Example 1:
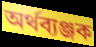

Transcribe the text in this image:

অৰ্থব্যঞ্জক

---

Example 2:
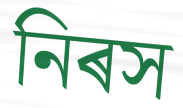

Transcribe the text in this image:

নিৰস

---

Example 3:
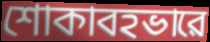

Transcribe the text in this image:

শোকাবহভাৱে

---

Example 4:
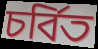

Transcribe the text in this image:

চৰ্বিত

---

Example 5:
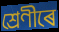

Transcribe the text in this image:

শ্ৰেণীৰে